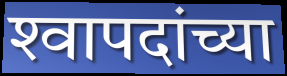
श्‍वापदांच्या